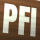
PFI